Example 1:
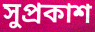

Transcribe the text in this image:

সুপ্রকাশ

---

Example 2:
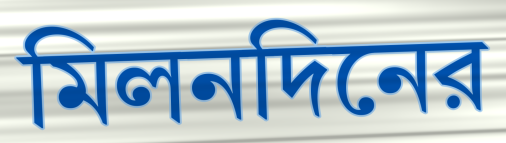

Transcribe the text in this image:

মিলনদিনের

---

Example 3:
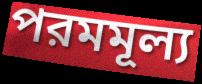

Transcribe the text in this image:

পরমমূল্য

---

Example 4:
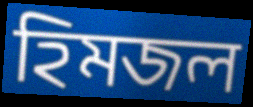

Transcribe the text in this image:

হিমজল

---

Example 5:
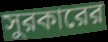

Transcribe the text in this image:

সুরকারের